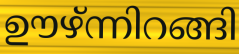
ഊഴ്ന്നിറങ്ങി